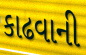
કાઢવાની